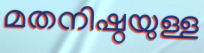
മതനിഷ്ഠയുള്ള